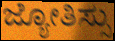
ಜ್ಯೋತಿಸ್ಸು